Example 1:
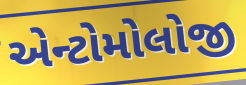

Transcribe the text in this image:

એન્ટોમોલોજી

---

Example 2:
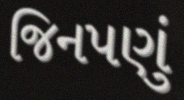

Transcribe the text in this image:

જિનપણું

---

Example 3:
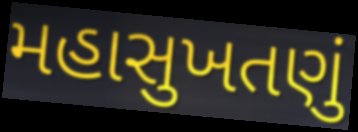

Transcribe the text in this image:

મહાસુખતણું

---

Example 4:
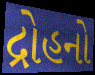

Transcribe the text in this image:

દ્રોહનો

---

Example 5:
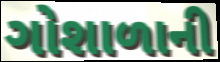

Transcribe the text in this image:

ગોશાળાની